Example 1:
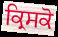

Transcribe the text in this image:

ਕ੍ਰਿਸਕੋ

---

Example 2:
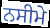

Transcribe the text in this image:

ਨਸੀਮੇ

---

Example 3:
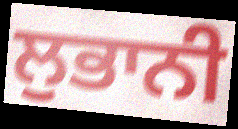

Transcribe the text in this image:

ਲੁਭਾਨੀ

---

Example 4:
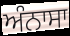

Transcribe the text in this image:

ਅੰਨਾਸਾ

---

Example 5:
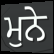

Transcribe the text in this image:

ਮੁਨੇ